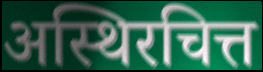
अस्थिरचित्त